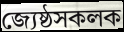
জ্যেষ্ঠসকলক